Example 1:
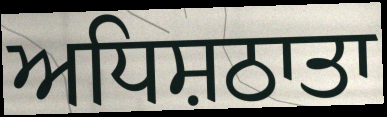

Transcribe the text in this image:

ਅਧਿਸ਼ਠਾਤਾ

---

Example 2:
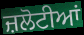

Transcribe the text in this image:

ਜ਼ਲੋਟੀਆਂ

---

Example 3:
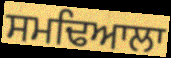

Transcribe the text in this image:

ਸਮਢਿਆਲਾ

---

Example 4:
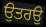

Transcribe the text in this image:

ਉਤਰਉ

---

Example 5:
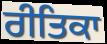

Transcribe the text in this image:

ਰੀਤਿਕਾ